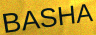
BASHA